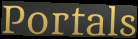
Portals